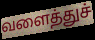
வளைத்துச்